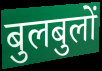
बुलबुलों